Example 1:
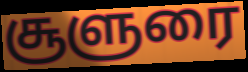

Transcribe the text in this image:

சூளுரை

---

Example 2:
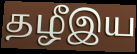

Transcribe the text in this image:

தழீஇய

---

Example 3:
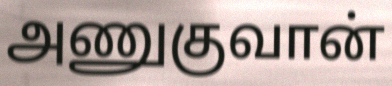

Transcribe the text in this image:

அணுகுவான்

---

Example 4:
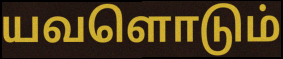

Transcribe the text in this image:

யவளொடும்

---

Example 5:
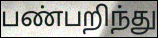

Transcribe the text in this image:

பண்பறிந்து